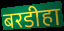
बरडीहा